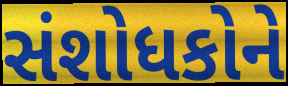
સંશોધકોને